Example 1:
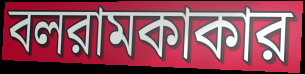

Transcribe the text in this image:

বলরামকাকার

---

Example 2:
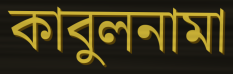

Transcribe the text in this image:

কাবুলনামা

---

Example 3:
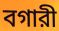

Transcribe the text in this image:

বগারী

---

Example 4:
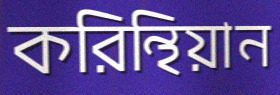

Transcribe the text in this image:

করিন্থিয়ান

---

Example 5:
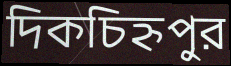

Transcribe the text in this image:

দিকচিহ্নপুর